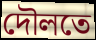
দৌলতে